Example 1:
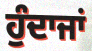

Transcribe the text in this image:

ਹੁੰਦਾਜਾਂ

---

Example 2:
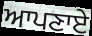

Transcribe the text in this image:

ਆਪਣਾਏ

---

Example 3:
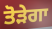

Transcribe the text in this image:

ਤੋੜੇਗਾ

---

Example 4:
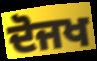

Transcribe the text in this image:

ਦੋਜਖ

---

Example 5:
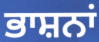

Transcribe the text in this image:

ਭਾਸ਼ਨਾਂ